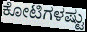
ಕೋಟಿಗಳಷ್ಟು